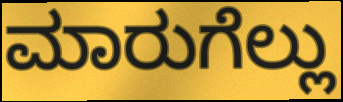
ಮಾರುಗೆಲ್ಲು